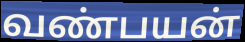
வண்பயன்